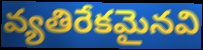
వ్యతిరేకమైనవి